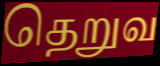
தெறுவ